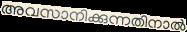
അവസാനിക്കുന്നതിനാൽ